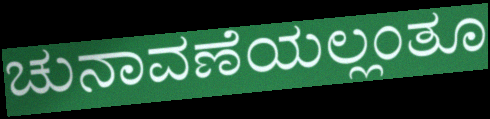
ಚುನಾವಣೆಯಲ್ಲಂತೂ